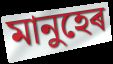
মানুহেৰ